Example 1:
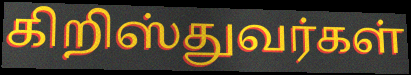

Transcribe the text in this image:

கிறிஸ்துவர்கள்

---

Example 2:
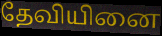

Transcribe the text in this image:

தேவியினை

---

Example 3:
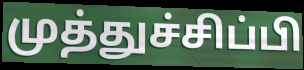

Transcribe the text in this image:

முத்துச்சிப்பி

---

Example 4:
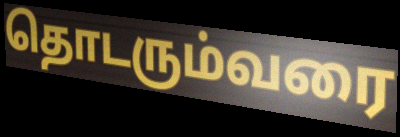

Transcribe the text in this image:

தொடரும்வரை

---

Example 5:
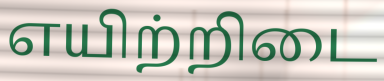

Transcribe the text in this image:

எயிற்றிடை